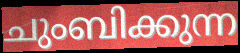
ചുംബിക്കുന്ന